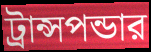
ট্রান্সপন্ডার